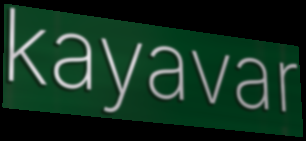
kayavar